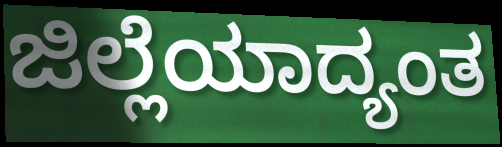
ಜಿಲ್ಲೆಯಾದ್ಯಂತ